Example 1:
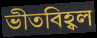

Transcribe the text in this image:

ভীতবিহ্বল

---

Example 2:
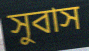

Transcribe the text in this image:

সুবাস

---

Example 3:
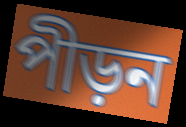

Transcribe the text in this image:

পীড়ন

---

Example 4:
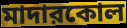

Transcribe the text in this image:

মাদারকোল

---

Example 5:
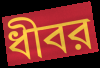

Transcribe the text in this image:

ধীবর